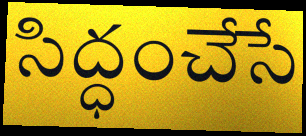
సిద్ధంచేసే